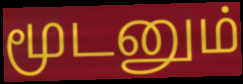
மூடனும்